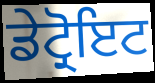
ਡੇਟ੍ਰੋਇਟ